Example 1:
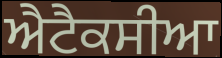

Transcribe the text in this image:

ਐਟੈਕਸੀਆ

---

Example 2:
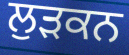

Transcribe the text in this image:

ਲੁੜਕਨ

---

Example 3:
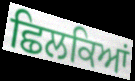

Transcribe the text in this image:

ਛਿਲਕਿਆਂ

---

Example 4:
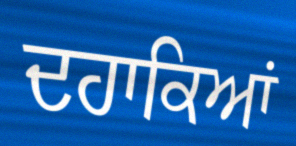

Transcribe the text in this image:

ਦਹਾਕਿਆਂ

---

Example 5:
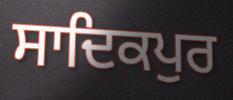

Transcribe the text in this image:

ਸਾਦਿਕਪੁਰ